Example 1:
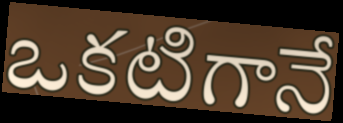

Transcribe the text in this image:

ఒకటిగానే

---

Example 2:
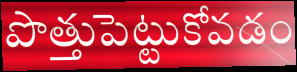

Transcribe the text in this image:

పొత్తుపెట్టుకోవడం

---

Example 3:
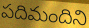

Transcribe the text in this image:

పదిమందిని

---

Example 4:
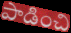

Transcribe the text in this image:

పాడించి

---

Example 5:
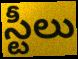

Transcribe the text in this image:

స్టీలు